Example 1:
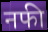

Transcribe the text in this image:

नफी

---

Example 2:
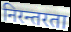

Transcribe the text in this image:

निरन्तरता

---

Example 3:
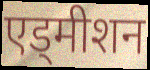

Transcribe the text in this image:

एड्मीशन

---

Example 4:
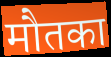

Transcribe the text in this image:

मौतका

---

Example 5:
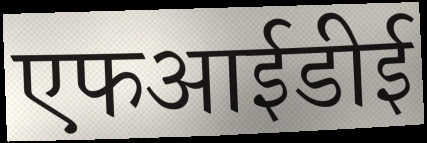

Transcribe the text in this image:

एफआईडीई